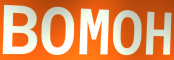
BOMOH